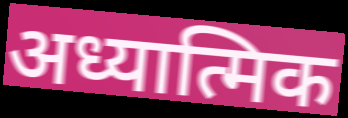
अध्यात्मिक